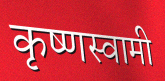
कृष्णस्वामी